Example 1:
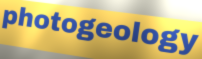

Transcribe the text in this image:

photogeology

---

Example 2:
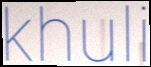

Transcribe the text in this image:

khuli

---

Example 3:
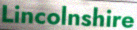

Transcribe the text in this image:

Lincolnshire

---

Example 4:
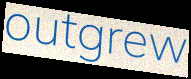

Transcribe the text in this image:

outgrew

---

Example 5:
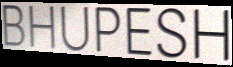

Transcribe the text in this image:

BHUPESH